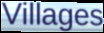
Villages